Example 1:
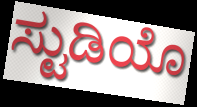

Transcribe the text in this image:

ಸ್ಟುಡಿಯೊ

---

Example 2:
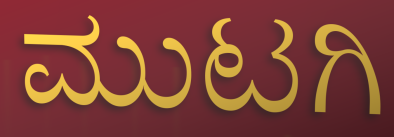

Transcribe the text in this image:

ಮುಟಗಿ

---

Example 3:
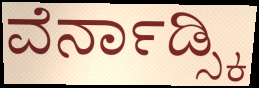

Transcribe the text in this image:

ವೆರ್ನಾಡ್ಸ್ಕಿ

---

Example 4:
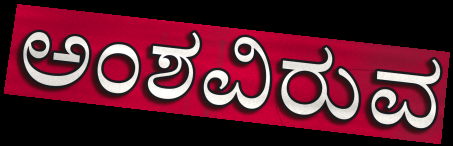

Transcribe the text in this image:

ಅಂಶವಿರುವ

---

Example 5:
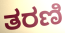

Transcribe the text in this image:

ತರಣಿ